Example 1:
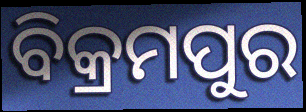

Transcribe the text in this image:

ବିକ୍ରମପୁର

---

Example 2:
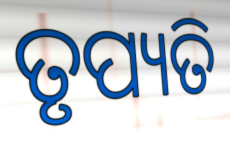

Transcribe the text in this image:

ତୃପ୍ୟତି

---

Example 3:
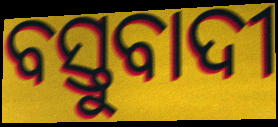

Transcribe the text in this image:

ବସ୍ତୁବାଦୀ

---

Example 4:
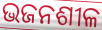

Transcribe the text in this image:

ଭଜନଶୀଳ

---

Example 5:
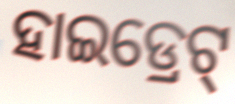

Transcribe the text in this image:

ହାଇଡ୍ରେଟ୍